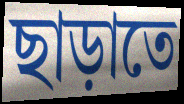
ছাড়াতে